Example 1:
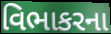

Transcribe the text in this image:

વિભાકરના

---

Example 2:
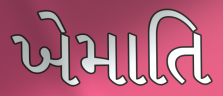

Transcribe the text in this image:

ખેમાતિ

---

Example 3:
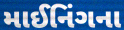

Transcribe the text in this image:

માઈનિંગના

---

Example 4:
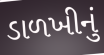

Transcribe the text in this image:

ડાળખીનું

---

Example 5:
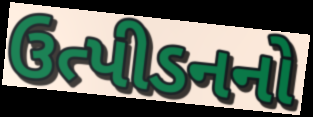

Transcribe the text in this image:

ઉત્પીડનનો